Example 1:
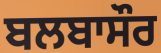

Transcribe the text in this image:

ਬਲਬਾਸੌਰ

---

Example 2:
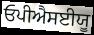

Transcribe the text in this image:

ਓਪੀਐਸਈਯੂ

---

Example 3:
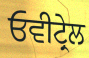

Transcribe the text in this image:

ਓਵੀਟ੍ਰੇਲ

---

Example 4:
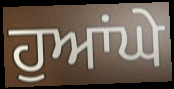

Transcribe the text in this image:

ਹੁਆਂਘੇ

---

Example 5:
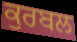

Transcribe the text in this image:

ਕੁਰਬਲ